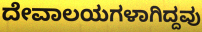
ದೇವಾಲಯಗಳಾಗಿದ್ದವು